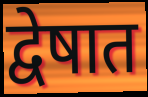
द्वेषात